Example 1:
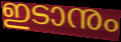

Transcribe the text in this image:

ഇടാനും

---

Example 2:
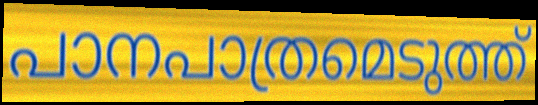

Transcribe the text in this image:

പാനപാത്രമെടുത്ത്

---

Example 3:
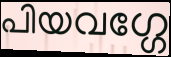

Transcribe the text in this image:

പിയവഗ്ഗേ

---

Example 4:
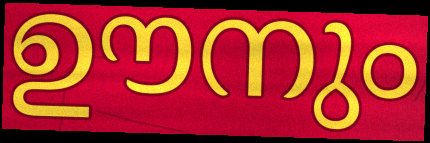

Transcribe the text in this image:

ഊനും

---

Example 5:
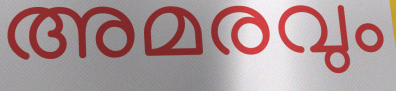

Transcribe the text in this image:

അമരവും